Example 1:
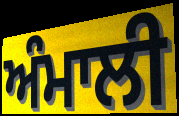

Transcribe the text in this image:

ਅੰਮਾਲੀ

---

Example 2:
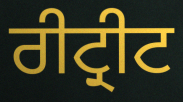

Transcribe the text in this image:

ਰੀਟ੍ਰੀਟ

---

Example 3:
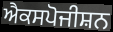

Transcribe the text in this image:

ਐਕਸਪੋਜੀਸ਼ਨ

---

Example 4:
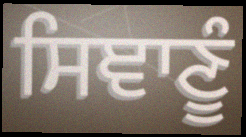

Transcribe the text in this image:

ਸਿਞਾਣੂੰ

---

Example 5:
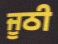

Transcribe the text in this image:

ਜੂਠੀ